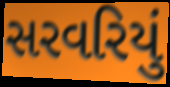
સરવરિયું